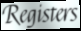
Registers